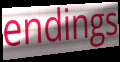
endings